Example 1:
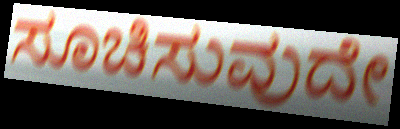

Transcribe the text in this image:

ಸೂಚಿಸುವುದೇ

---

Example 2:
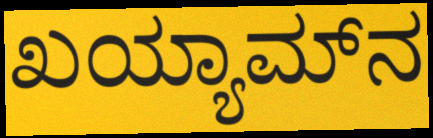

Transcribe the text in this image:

ಖಯ್ಯಾಮ್‌ನ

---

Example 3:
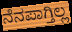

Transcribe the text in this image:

ನೆನಪಾಗ್ತಿಲ್ಲ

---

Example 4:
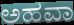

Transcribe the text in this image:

ಅಹವಾ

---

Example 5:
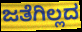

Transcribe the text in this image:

ಜತೆಗಿಲ್ಲದ